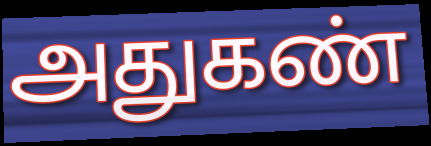
அதுகண்